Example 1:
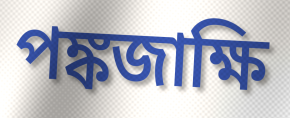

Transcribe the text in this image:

পঙ্কজাক্ষি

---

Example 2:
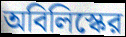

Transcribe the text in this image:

অবিলিস্কের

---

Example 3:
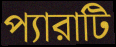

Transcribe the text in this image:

প্যারাটি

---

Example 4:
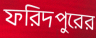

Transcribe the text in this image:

ফরিদপুরের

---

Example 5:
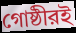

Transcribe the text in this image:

গোষ্ঠীরই